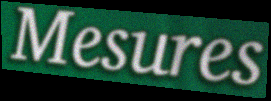
Mesures